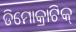
ଡିମୋକ୍ରାଟିକ୍